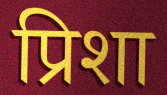
प्रिशा